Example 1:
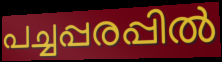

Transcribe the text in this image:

പച്ചപ്പരപ്പിൽ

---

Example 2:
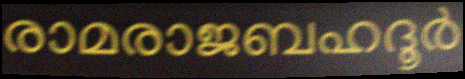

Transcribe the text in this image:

രാമരാജബഹദൂർ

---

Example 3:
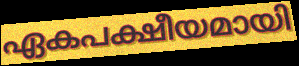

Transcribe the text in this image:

ഏകപക്ഷീയമായി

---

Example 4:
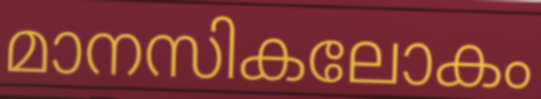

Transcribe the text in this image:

മാനസികലോകം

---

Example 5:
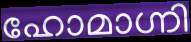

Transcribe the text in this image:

ഹോമാഗ്നി